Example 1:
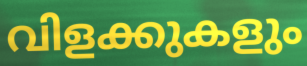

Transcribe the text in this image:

വിളക്കുകളും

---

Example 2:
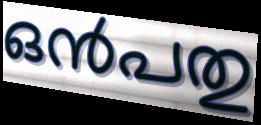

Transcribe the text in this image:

ഒൻപതു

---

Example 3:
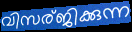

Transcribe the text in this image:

വിസര്ജിക്കുന്ന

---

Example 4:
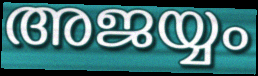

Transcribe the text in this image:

അജയ്യം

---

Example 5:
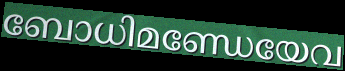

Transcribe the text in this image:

ബോധിമണ്ഡേയേവ